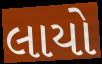
લાયો